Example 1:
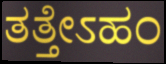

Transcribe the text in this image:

ತತ್ತೇಽಹಂ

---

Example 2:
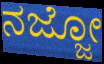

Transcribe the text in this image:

ನಜ್ಜೋ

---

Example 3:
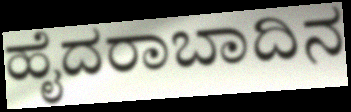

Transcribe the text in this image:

ಹೈದರಾಬಾದಿನ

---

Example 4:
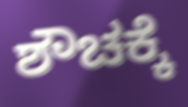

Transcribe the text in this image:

ಶೌಚಕ್ಕೆ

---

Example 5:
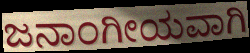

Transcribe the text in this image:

ಜನಾಂಗೀಯವಾಗಿ